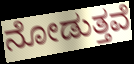
ನೋಡುತ್ತವೆ